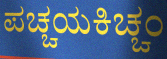
ಪಚ್ಚಯಕಿಚ್ಚಂ